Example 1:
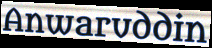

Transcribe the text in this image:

Anwaruddin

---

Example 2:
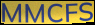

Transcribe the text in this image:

MMCFS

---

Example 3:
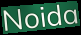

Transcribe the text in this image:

Noida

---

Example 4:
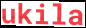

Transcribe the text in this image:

ukila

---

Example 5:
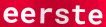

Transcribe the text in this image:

eerste